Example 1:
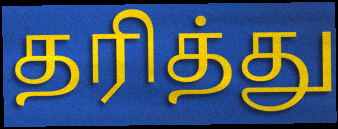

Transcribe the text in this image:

தரித்து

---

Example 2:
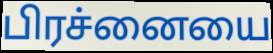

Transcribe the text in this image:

பிரச்னையை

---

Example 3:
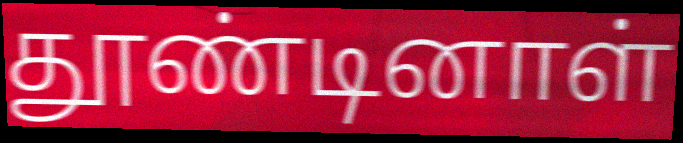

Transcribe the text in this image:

தூண்டினாள்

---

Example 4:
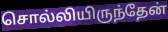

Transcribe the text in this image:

சொல்லியிருந்தேன்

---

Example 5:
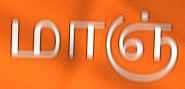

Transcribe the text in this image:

மாஞ்